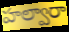
హల్వారా